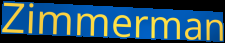
Zimmerman